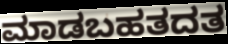
ಮಾಡಬಹತದತ